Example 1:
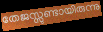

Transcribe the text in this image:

തേജസ്സുണ്ടായിരുന്നു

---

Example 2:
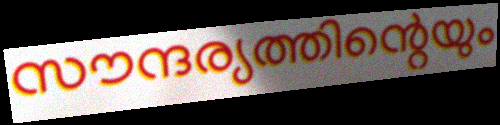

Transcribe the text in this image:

സൗന്ദര്യത്തിന്റെയും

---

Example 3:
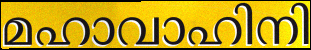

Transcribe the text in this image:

മഹാവാഹിനി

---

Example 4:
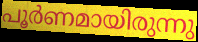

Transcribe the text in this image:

പൂർണമായിരുന്നു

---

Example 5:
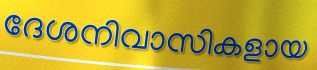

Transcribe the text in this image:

ദേശനിവാസികളായ